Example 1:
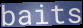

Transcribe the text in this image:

baits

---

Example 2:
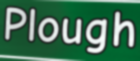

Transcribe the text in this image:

Plough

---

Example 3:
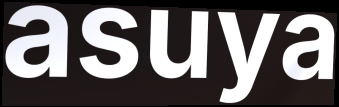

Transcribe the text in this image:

asuya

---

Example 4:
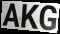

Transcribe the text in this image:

AKG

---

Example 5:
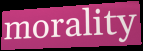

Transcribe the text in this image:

morality